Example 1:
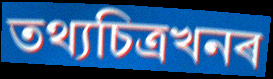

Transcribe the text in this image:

তথ্যচিত্ৰখনৰ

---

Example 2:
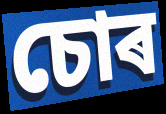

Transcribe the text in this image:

চোৰ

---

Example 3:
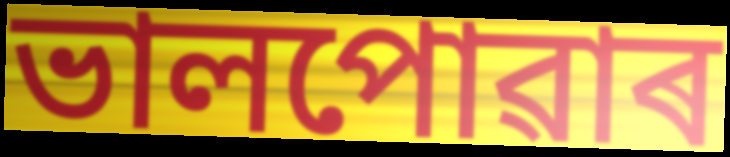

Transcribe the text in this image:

ভালপোৱাৰ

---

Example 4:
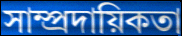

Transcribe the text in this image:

সাম্প্ৰদায়িকতা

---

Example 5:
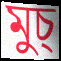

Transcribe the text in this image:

মুচ্